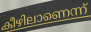
കീഴിലാണെന്ന്